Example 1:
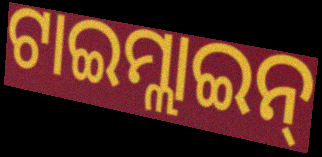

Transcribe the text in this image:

ଟାଇମ୍ଲାଇନ୍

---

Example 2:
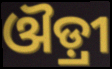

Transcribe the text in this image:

ଔଡ଼୍ରୀ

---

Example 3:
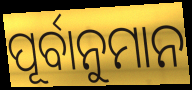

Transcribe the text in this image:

ପୂର୍ବାନୁମାନ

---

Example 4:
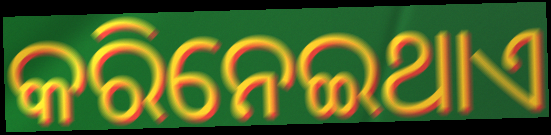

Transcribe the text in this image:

କରିନେଇଥାଏ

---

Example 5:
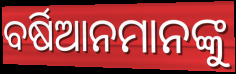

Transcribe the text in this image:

ବର୍ଷିଆନମାନଙ୍କୁ